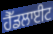
ਹੈੱਡਲਾਈਟ